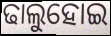
ଢାଲୁହୋଇ